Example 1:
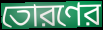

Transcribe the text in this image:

তোরণের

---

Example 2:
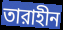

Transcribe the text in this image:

তারাহীন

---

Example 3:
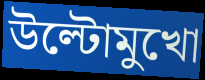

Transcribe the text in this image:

উল্টোমুখো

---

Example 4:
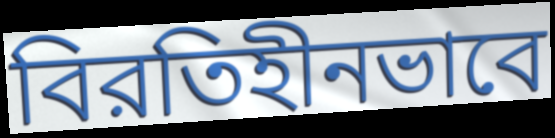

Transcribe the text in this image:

বিরতিহীনভাবে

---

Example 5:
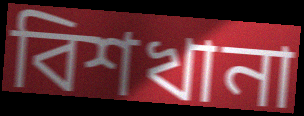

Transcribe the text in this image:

বিশখানা